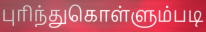
புரிந்துகொள்ளும்படி